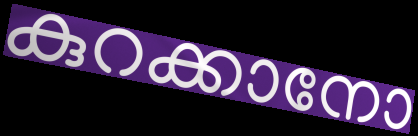
കുറക്കാനോ